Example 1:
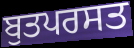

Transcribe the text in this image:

ਬੁਤਪਰਸਤ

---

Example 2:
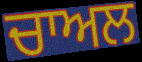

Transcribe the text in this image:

ਚਾਅਲ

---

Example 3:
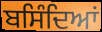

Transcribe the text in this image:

ਬਸਿੰਦਿਆਂ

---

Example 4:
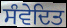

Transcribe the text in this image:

ਸੰਵੇਦਿਤ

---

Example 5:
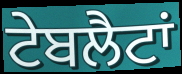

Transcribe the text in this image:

ਟੇਬਲੈਟਾਂ